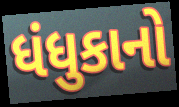
ધંધુકાનો